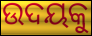
ଉଦୟକୁ